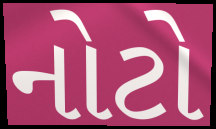
નોટો